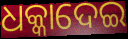
ଧକ୍କାଦେଇ